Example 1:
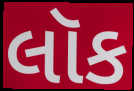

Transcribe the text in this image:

લૉક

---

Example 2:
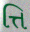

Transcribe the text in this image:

ત્તિ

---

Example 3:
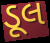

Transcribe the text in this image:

ડૂલ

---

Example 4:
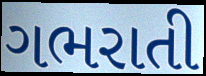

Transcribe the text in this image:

ગભરાતી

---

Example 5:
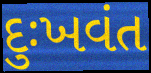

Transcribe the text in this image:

દુઃખવંત